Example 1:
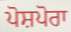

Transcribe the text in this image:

ਪੋਸ਼ਪੋਰਾ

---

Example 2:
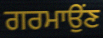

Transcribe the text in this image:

ਗਰਮਾਉਂਣ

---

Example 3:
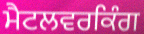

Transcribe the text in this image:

ਮੈਟਲਵਰਕਿੰਗ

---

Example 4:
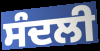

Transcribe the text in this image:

ਸੰਦਲੀ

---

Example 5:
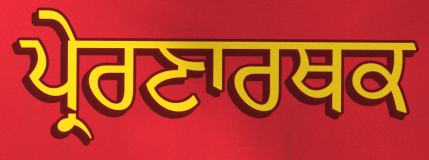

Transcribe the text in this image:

ਪ੍ਰੇਰਣਾਰਥਕ